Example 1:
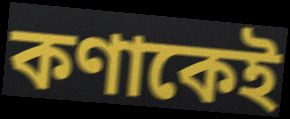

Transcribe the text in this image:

কণাকেই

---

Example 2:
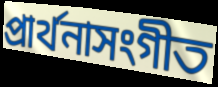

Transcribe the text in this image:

প্রার্থনাসংগীত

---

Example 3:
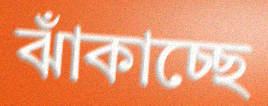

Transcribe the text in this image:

ঝাঁকাচ্ছে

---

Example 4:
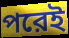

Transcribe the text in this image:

পরেই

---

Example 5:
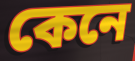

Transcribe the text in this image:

কেনে